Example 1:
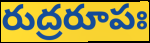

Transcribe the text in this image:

రుద్రరూపః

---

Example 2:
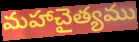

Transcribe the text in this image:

మహాచైత్యము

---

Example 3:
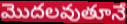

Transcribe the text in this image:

మొదలవుతూనే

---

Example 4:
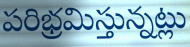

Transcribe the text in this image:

పరిభ్రమిస్తున్నట్లు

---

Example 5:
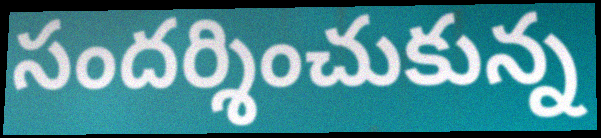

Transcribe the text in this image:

సందర్శించుకున్న